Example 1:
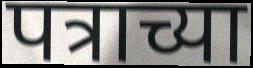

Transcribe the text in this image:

पत्राच्या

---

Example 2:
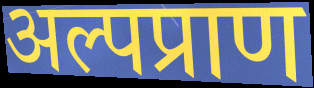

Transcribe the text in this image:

अल्पप्राण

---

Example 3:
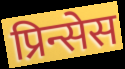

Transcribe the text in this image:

प्रिन्सेस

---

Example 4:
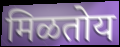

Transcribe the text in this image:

मिळतोय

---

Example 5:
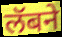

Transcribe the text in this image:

लॅबने